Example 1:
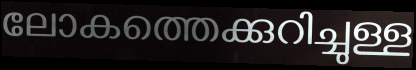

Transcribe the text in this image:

ലോകത്തെക്കുറിച്ചുള്ള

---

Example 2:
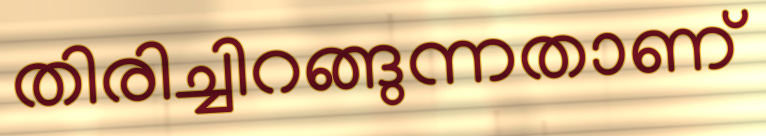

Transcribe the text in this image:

തിരിച്ചിറങ്ങുന്നതാണ്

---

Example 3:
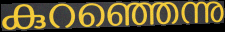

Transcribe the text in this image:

കുറഞ്ഞെന്നു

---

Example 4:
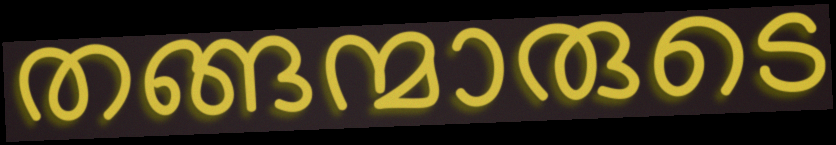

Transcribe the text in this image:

തങ്ങന്മാരുടെ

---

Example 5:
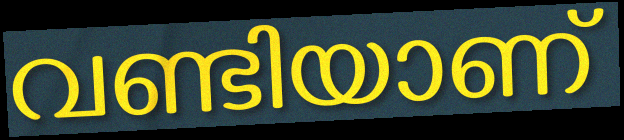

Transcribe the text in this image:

വണ്ടിയാണ്